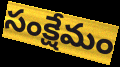
సంక్షేమం